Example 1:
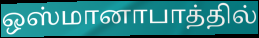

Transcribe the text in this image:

ஒஸ்மானாபாத்தில்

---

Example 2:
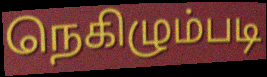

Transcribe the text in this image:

நெகிழும்படி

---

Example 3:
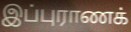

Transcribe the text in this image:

இப்புராணக்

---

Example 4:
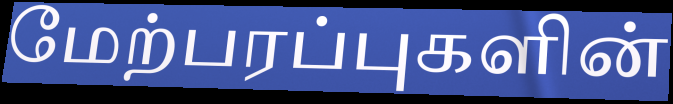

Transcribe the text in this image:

மேற்பரப்புகளின்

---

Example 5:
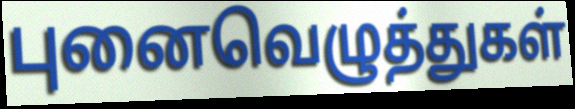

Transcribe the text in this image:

புனைவெழுத்துகள்